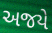
અજયે